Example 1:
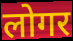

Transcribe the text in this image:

लोगर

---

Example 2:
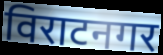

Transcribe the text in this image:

विराटनगर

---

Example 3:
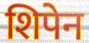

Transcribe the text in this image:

शिपेन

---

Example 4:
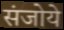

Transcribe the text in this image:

संजोये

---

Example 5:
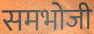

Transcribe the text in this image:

समभोजी